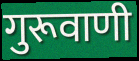
गुरूवाणी